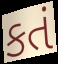
કતં